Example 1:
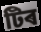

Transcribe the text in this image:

টিৰ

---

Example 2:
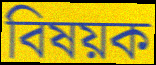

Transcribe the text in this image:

বিষয়ক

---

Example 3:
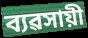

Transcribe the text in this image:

ব্যৱসায়ী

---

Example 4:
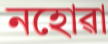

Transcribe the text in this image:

নহোৱা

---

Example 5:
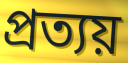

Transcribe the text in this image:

প্ৰত্যয়